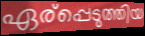
ഏര്പ്പെടുത്തിയ